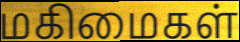
மகிமைகள்